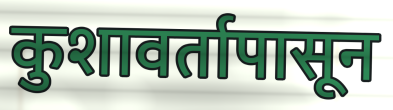
कुशावर्तापासून